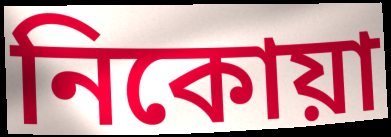
নিকোয়া